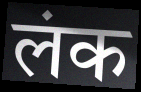
लंक